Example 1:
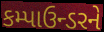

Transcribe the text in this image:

કમ્પાઉન્ડરને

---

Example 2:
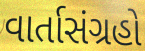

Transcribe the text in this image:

વાર્તાસંગ્રહો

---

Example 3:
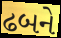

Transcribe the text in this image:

ઢબને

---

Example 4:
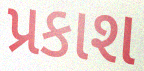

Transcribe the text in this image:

પ્રકાશ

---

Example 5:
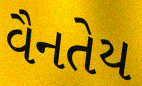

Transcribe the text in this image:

વૈનતેય